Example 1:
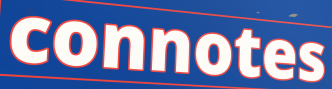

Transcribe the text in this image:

connotes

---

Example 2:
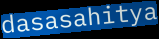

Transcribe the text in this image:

dasasahitya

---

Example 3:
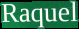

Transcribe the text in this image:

Raquel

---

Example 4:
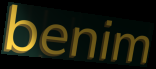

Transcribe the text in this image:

benim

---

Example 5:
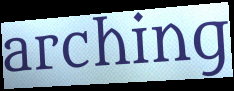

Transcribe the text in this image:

arching